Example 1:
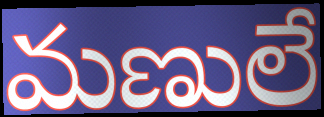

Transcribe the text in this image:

మణులే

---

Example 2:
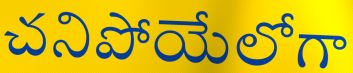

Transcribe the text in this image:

చనిపోయేలోగా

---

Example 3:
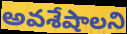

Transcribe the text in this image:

అవశేషాలని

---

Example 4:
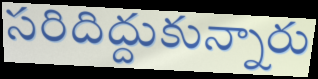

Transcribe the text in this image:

సరిదిద్దుకున్నారు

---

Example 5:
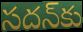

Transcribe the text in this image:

సదన్‌కు